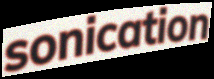
sonication